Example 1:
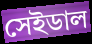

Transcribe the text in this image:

সেইডাল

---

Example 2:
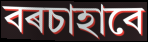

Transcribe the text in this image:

বৰচাহাবে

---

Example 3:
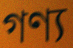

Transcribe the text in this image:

গণ্য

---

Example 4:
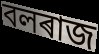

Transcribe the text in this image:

বলৰাজ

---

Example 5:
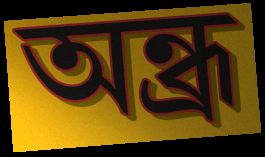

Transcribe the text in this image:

অন্ধ্ৰ